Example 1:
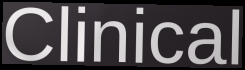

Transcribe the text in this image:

Clinical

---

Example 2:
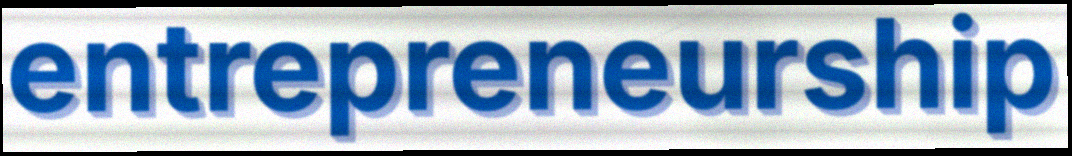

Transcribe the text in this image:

entrepreneurship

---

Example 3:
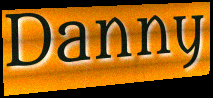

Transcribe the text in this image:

Danny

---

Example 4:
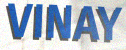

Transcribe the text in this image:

VINAY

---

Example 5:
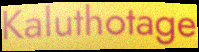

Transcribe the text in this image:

Kaluthotage